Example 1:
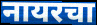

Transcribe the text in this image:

नायरचा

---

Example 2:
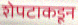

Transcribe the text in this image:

शेपटाकडून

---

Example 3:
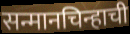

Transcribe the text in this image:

सन्मानचिन्हाची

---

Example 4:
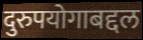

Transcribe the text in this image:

दुरुपयोगाबद्दल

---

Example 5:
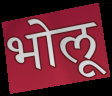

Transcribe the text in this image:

भोलू